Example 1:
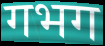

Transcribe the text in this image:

गभग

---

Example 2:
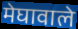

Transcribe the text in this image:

मेघावाले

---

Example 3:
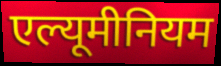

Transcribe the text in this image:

एल्‍यूमीनियम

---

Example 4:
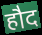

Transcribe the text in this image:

हौद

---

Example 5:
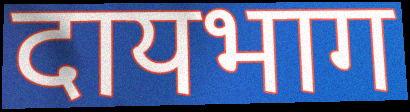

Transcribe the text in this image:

दायभाग